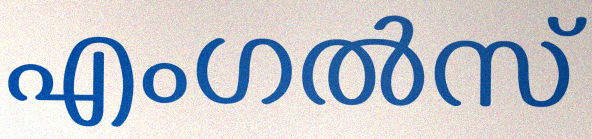
എംഗൽസ്